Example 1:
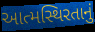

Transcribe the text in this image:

આત્મસ્થિરતાનું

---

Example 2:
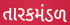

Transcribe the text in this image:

તારકમંડળ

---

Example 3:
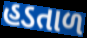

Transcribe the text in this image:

હડતાળ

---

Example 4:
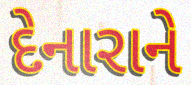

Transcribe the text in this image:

દેનારાને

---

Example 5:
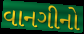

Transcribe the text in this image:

વાનગીનો